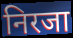
निरजा